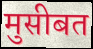
मुसीबत